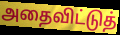
அதைவிட்டுத்